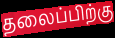
தலைப்பிற்கு